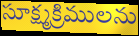
సూక్ష్మక్రిములను